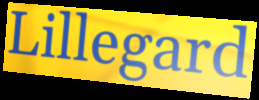
Lillegard